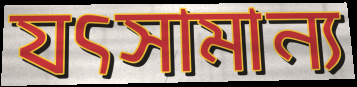
যৎসামান্য